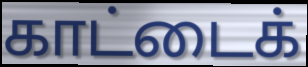
காட்டைக்